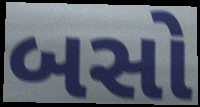
બસો